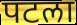
पटला